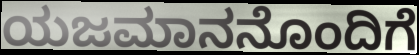
ಯಜಮಾನನೊಂದಿಗೆ